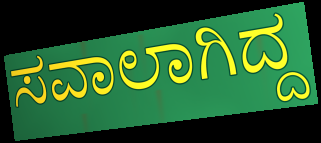
ಸವಾಲಾಗಿದ್ದ